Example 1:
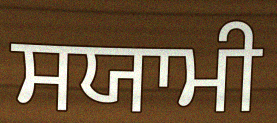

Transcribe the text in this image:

ਸਯਾਮੀ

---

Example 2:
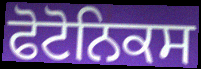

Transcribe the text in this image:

ਫੋਟੋਨਿਕਸ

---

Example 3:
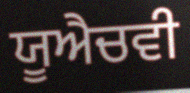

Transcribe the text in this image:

ਯੂਐਚਵੀ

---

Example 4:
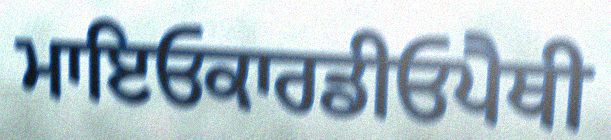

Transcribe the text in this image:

ਮਾਇਓਕਾਰਡੀਓਪੈਥੀ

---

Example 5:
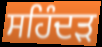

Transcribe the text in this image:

ਸਹਿੰਦੜ